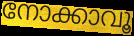
നോക്കാവൂ